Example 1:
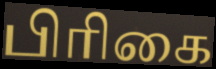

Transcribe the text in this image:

பிரிகை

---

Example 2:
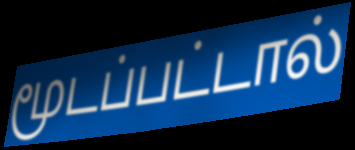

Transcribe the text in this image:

மூடப்பட்டால்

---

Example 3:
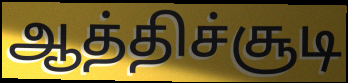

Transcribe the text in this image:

ஆத்திச்சூடி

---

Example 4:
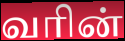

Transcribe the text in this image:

வரின்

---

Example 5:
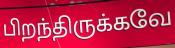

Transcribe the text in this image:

பிறந்திருக்கவே